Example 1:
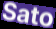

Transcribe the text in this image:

Sato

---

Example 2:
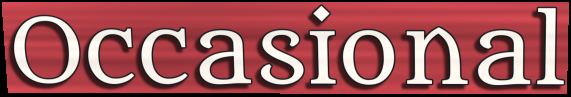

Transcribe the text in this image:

Occasional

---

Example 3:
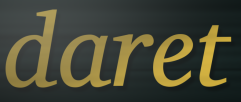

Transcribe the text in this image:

daret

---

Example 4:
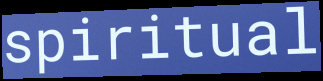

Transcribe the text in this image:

spiritual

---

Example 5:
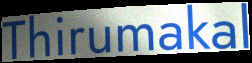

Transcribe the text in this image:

Thirumakal